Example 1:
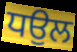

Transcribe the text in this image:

ਧਉਲ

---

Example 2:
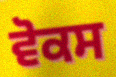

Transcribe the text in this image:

ਵੋਕਸ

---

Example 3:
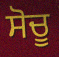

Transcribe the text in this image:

ਸੋਚੂ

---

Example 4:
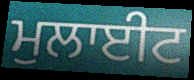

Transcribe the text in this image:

ਮੁਲਾਈਟ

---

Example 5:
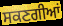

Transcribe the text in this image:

ਸਕਣਗੀਆਂ